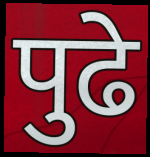
पुढे